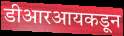
डीआरआयकडून